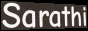
Sarathi